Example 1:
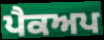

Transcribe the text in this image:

ਪੈਕਅਪ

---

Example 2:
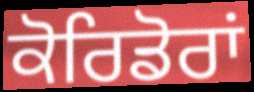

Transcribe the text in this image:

ਕੋਰਿਡੋਰਾਂ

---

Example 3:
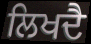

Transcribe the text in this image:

ਲਿਖਦੈ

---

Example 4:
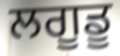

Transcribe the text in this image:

ਲਗੂਡੂ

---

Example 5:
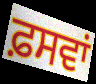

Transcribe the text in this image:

ਫ਼ਸਵਾਂ